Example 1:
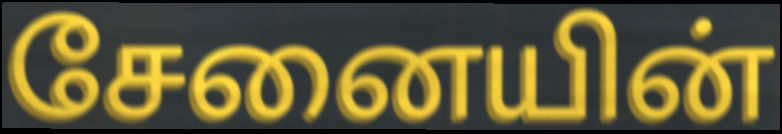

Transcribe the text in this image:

சேனையின்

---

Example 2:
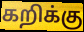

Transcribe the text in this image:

கறிக்கு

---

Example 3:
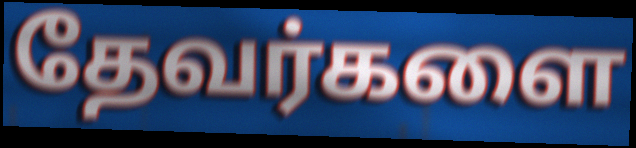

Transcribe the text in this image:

தேவர்களை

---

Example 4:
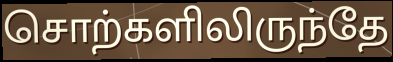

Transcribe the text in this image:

சொற்களிலிருந்தே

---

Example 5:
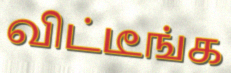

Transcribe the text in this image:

விட்டீங்க